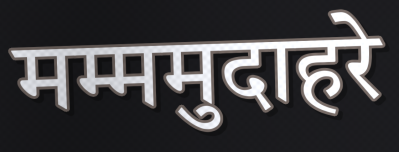
मम्ममुदाहरे